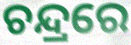
ଚନ୍ଦ୍ରରେ